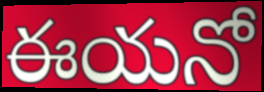
ఈయనో